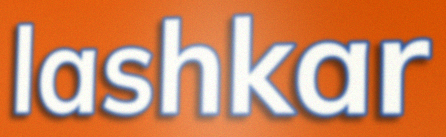
lashkar